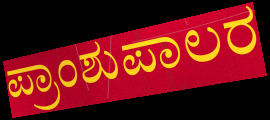
ಪ್ರಾಂಶುಪಾಲರ